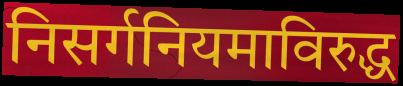
निसर्गनियमाविरुद्ध